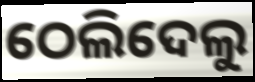
ଠେଲିଦେଲୁ